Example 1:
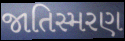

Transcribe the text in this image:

જાતિસ્મરણ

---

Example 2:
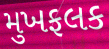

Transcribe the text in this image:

મુખફલક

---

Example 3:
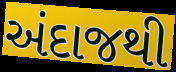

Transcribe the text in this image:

અંદાજથી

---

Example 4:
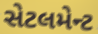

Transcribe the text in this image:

સેટલમેન્ટ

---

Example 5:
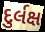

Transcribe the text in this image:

દુર્લક્ષ